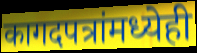
कागदपत्रांमध्येही